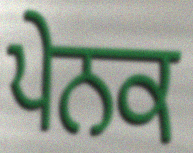
ਪੇਨਕ